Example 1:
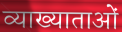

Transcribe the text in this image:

व्याख्याताओं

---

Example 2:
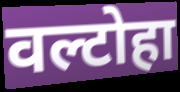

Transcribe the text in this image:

वल्टोहा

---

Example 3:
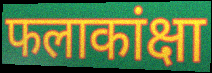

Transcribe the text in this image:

फलाकांक्षा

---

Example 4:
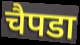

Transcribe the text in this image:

चैपडा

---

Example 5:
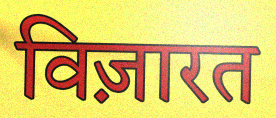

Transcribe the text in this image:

विज़ारत